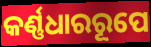
କର୍ଣ୍ଣଧାରରୂପେ